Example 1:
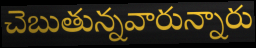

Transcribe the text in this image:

చెబుతున్నవారున్నారు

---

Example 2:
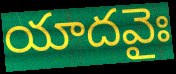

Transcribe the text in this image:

యాదవైః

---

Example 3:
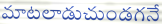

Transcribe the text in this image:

మాటలాడుచుండగనే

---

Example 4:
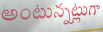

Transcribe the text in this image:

అంటున్నట్లుగా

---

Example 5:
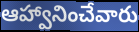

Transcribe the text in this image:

ఆహ్వానించేవారు